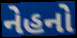
નેહનો